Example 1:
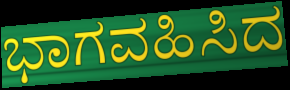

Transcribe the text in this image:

ಭಾಗವಹಿಸಿದ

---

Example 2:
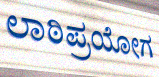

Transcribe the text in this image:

ಲಾಠಿಪ್ರಯೋಗ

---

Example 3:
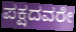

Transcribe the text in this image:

ಪಕ್ಷದವರೇ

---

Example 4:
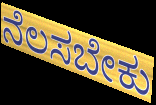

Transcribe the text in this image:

ನೆಲಸಬೇಕು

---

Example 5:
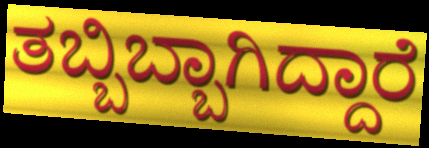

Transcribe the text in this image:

ತಬ್ಬಿಬ್ಬಾಗಿದ್ದಾರೆ